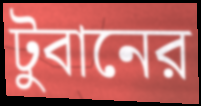
টুবানের